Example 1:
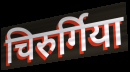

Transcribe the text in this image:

चिरुर्गिया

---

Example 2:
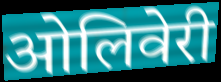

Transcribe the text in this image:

ओलिवेरी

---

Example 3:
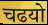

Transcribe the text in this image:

चढयो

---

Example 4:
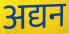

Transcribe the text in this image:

अद्यन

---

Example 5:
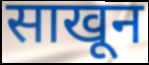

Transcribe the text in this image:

साखून